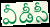
వీడీసీ